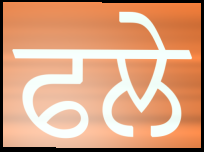
ਫਲੇ